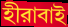
হীরাবাই